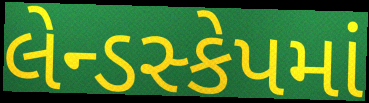
લેન્ડસ્કેપમાં